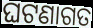
ଘଟଣାଗତ